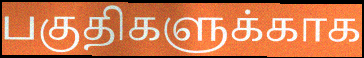
பகுதிகளுக்காக